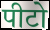
पीटो